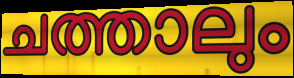
ചത്താലും